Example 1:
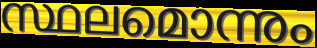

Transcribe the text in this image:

സ്ഥലമൊന്നും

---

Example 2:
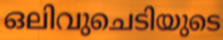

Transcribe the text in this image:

ഒലിവുചെടിയുടെ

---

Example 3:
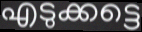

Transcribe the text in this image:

എടുക്കട്ടെ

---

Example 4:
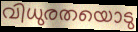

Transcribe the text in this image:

വിധുരതയൊടു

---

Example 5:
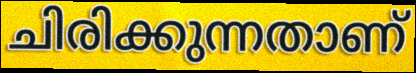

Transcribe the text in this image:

ചിരിക്കുന്നതാണ്